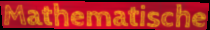
Mathematische